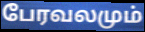
பேரவலமும்